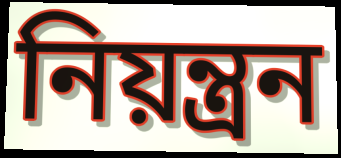
নিয়ন্ত্রন